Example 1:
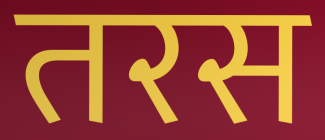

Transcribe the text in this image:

तरस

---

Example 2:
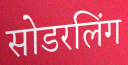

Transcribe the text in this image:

सोडरलिंग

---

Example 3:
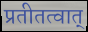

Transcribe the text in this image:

प्रतीतत्वात्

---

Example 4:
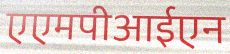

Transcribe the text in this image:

एएमपीआईएन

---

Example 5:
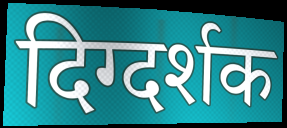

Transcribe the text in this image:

दिग्दर्शक